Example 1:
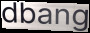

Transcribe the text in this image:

dbang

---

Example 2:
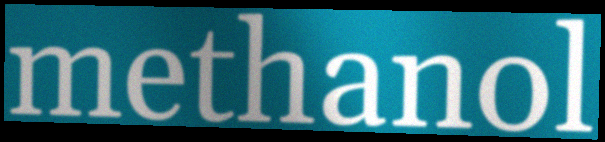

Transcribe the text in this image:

methanol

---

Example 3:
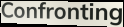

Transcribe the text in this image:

Confronting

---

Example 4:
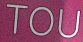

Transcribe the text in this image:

TOU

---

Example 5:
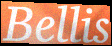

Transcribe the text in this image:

Bellis